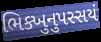
ભિક્ખુનુપસ્સયં